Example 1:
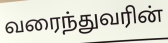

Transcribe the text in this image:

வரைந்துவரின்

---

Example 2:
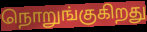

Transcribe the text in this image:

நொறுங்குகிறது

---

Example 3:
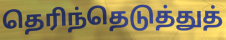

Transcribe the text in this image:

தெரிந்தெடுத்துத்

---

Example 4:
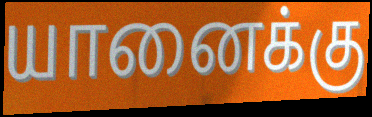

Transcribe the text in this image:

யானைக்கு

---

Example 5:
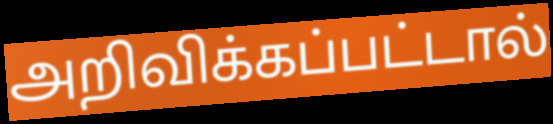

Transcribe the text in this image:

அறிவிக்கப்பட்டால்